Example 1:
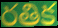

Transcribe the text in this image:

రతిక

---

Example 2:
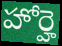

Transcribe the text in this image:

హోర్హె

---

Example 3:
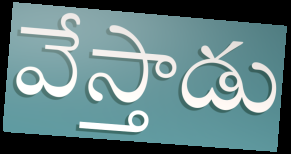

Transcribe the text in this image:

వేస్తాడు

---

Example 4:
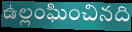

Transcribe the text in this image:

ఉల్లంఘించినది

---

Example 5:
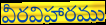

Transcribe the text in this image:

వీరవిహారము